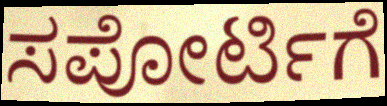
ಸಪೋರ್ಟಿಗೆ